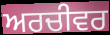
ਅਰਚੀਵਰ